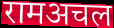
रामअचल